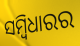
ସମ୍ବିଧାରର